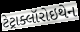
ટેટ્રાક્લૉરોઇથેન